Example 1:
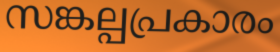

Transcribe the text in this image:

സങ്കല്പപ്രകാരം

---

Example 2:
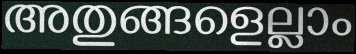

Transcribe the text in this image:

അതുങ്ങളെല്ലാം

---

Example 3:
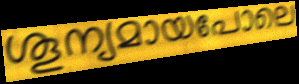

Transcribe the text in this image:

ശൂന്യമായപോലെ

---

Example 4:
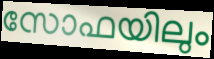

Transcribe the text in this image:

സോഫയിലും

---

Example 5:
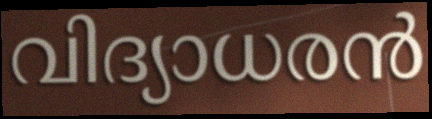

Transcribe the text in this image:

വിദ്യാധരൻ